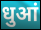
धुआं